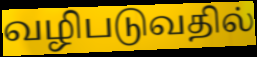
வழிபடுவதில்